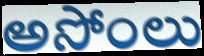
అసోంలు